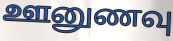
ஊனுணவு